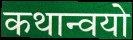
कथान्वयो